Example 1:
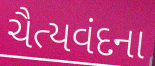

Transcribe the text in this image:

ચૈત્યવંદના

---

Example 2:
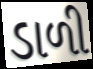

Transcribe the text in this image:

ડાળી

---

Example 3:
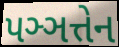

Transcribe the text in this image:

પઞ્ઞત્તેન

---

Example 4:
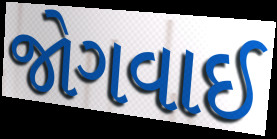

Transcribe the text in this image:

જોગવાઈ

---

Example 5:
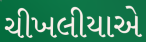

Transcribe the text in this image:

ચીખલીયાએ